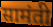
सामंती